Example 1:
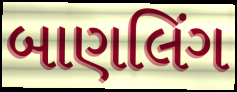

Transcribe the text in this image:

બાણલિંગ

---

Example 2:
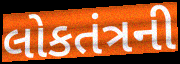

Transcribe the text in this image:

લોકતંત્રની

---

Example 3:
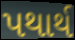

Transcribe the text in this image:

પથાર્થ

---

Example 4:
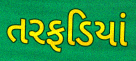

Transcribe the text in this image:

તરફડિયાં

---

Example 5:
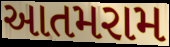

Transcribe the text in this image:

આતમરામ